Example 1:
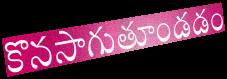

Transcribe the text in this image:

కొనసాగుతూండడం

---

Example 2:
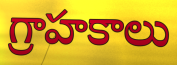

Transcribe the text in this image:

గ్రాహకాలు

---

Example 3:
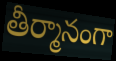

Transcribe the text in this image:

తీర్మానంగా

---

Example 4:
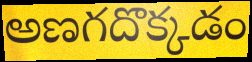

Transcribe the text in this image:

అణగదొక్కడం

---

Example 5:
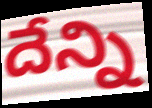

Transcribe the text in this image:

దేన్ని